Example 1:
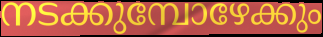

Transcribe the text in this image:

നടക്കുമ്പോഴേക്കും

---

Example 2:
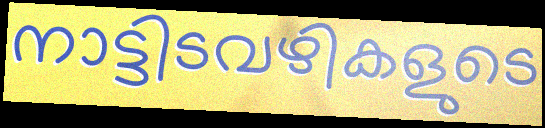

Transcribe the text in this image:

നാട്ടിടവഴികളുടെ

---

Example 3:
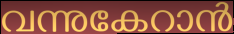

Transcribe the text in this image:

വന്നുകേറാൻ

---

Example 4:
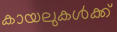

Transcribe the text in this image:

കായലുകൾക്ക്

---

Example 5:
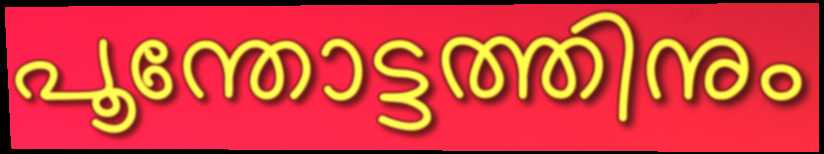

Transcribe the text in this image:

പൂന്തോട്ടത്തിനും